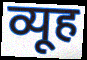
व्यूह